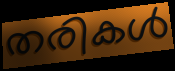
തരികൾ